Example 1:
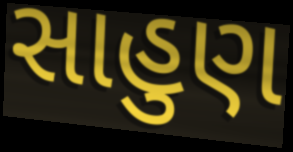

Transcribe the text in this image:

સાહુણ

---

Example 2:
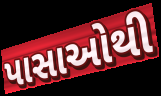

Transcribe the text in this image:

પાસાઓથી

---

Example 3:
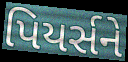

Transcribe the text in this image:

પિયર્સને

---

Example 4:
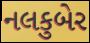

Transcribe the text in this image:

નલકુબેર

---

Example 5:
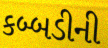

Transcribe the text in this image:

કબ્બડીની